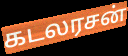
கடலரசன்